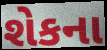
શેકના